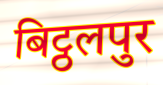
बिट्ठलपुर